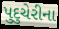
પુદુચેરીના